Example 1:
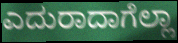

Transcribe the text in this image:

ಎದುರಾದಾಗೆಲ್ಲಾ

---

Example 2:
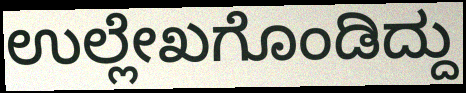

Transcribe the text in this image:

ಉಲ್ಲೇಖಗೊಂಡಿದ್ದು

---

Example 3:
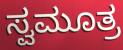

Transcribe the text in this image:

ಸ್ವಮೂತ್ರ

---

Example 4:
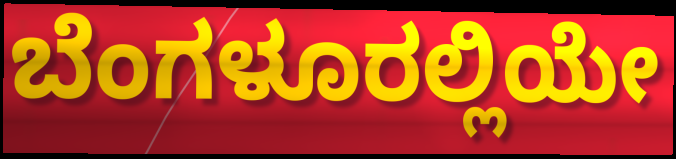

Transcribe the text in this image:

ಬೆಂಗಳೂರಲ್ಲಿಯೇ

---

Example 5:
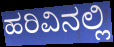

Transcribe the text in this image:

ಹರಿವಿನಲ್ಲಿ